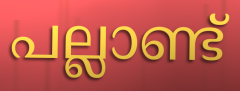
പല്ലാണ്ട്